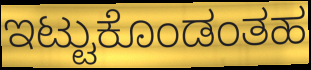
ಇಟ್ಟುಕೊಂಡಂತಹ